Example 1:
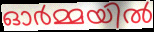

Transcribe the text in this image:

ഓർമ്മയിൽ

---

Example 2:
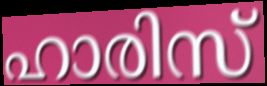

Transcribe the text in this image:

ഹാരിസ്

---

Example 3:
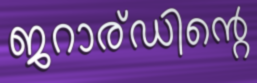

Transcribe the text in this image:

ജറാര്ഡിന്റെ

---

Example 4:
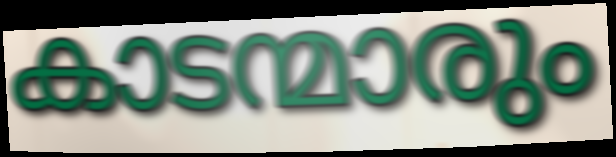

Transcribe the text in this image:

കാടന്മാരും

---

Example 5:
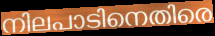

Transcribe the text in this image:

നിലപാടിനെതിരെ